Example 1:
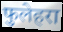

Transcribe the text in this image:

फुलेहरा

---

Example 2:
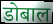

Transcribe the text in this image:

डोबाल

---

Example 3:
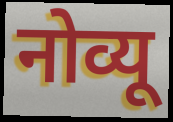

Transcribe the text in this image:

नोव्यू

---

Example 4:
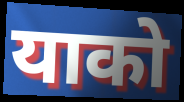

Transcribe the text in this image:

याको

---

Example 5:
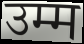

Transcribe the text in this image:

उम्म